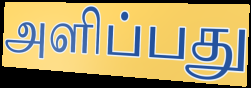
அளிப்பது